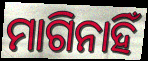
ମାଗିନାହିଁ